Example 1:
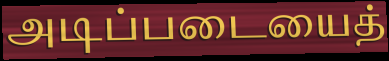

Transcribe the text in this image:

அடிப்படையைத்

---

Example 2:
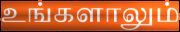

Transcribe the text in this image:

உங்களாலும்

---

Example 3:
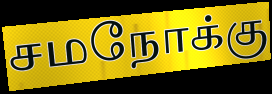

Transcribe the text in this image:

சமநோக்கு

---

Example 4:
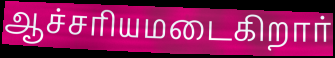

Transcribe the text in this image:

ஆச்சரியமடைகிறார்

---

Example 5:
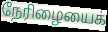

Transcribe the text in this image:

நேரிழையைக்